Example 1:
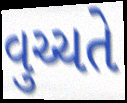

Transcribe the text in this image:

વુચ્ચતે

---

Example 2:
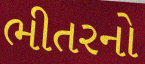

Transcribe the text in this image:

ભીતરનો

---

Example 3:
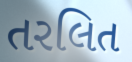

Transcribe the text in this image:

તરલિત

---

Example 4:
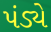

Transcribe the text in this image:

પંડ્યે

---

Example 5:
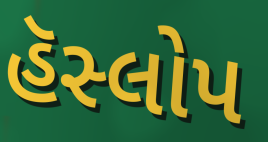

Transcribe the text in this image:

હૅસ્લોપ